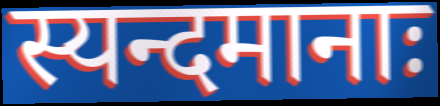
स्यन्दमानाः